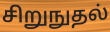
சிறுநுதல்